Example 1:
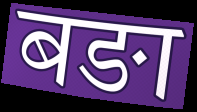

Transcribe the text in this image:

बङा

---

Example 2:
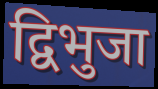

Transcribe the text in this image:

द्विभुजा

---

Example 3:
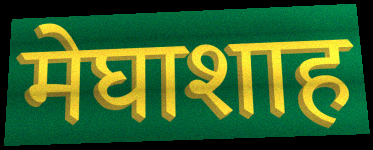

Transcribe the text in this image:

मेघाशाह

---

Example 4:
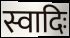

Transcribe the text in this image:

स्वादिः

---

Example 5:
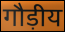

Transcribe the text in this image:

गौड़ीय